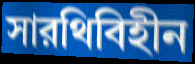
সারথিবিহীন